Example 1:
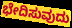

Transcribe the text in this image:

ಭೇದಿಸುವುದು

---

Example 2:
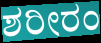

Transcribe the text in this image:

ಶರೀರಂ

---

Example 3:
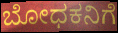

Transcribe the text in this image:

ಬೋಧಕನಿಗೆ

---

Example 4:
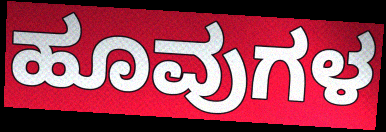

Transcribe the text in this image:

ಹೂವುಗಳ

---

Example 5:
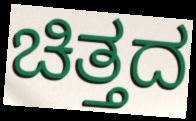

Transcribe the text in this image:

ಚಿತ್ತದ